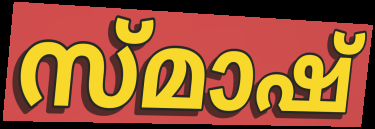
സ്മാഷ്